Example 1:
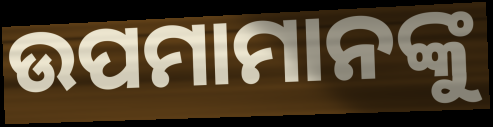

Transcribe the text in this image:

ଉପମାମାନଙ୍କୁ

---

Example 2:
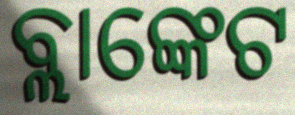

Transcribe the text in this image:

ବ୍ଲାଙ୍କେଟ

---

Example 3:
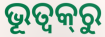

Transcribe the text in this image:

ଭୂତ୍ଵକ୍‌ରୁ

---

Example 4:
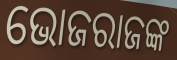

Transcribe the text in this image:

ଭୋଜରାଜଙ୍କ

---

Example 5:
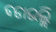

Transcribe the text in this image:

ବଡାଭଲ୍ଲି